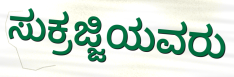
ಸುಕ್ರಜ್ಜಿಯವರು